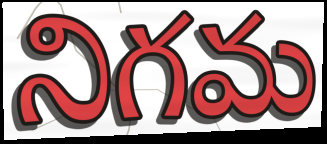
నిగమ